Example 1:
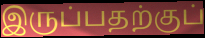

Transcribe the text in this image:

இருப்பதற்குப்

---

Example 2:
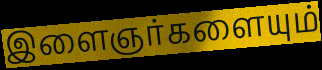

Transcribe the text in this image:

இளைஞர்களையும்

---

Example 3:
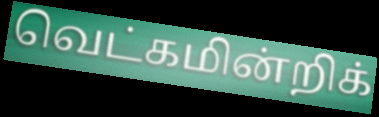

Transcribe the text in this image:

வெட்கமின்றிக்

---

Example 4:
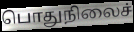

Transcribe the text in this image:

பொதுநிலைச்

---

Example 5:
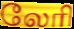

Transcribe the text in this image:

லேரி